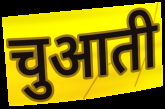
चुआती